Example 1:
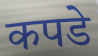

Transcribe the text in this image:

कपडे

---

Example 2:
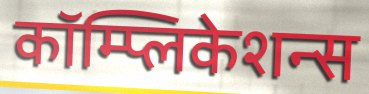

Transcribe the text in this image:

कॉम्प्लिकेशन्स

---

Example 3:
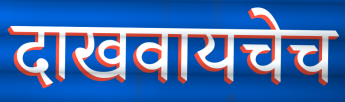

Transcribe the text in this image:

दाखवायचेच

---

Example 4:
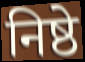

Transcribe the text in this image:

निष्ठे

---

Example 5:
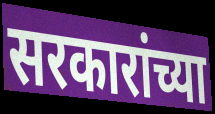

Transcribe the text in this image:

सरकारांच्या